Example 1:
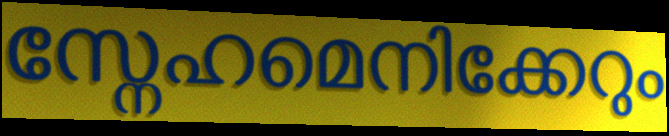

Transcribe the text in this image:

സ്നേഹമെനിക്കേറും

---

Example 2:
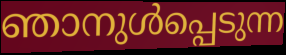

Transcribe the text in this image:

ഞാനുൾപ്പെടുന്ന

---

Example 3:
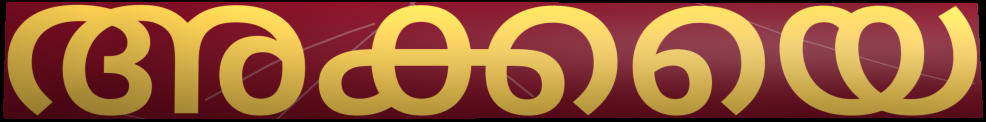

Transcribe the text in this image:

അക്കയെ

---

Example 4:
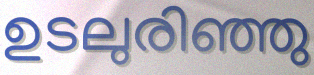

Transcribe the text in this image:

ഉടലുരിഞ്ഞു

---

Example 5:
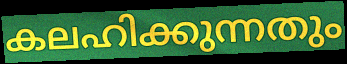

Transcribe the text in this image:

കലഹിക്കുന്നതും